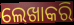
ଲେଖାକରି